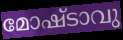
മോഷ്ടാവു